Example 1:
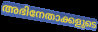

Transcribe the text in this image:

അഭിനേതാക്കളുടെ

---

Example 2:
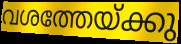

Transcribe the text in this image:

വശത്തേയ്ക്കു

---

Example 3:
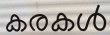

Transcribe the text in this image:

കരകൾ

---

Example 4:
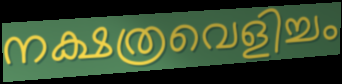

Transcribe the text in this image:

നക്ഷത്രവെളിച്ചം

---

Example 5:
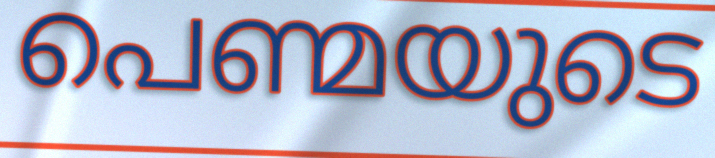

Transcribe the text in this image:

പെണ്മയുടെ